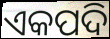
ଏକପଦି